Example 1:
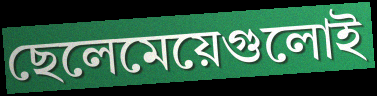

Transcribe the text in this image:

ছেলেমেয়েগুলোই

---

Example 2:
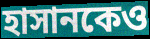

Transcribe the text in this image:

হাসানকেও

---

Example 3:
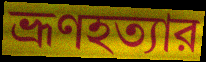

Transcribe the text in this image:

ভ্রূণহত্যার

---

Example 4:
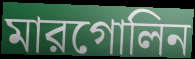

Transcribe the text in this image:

মারগোলিন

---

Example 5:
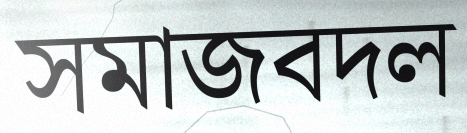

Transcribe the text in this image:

সমাজবদল